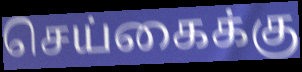
செய்கைக்கு